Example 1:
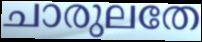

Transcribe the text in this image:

ചാരുലതേ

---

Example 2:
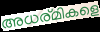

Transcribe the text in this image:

അധര്മികളെ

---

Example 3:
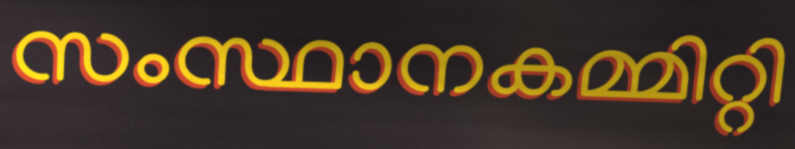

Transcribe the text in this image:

സംസ്ഥാനകമ്മിറ്റി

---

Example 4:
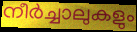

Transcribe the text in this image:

നീർച്ചാലുകളും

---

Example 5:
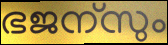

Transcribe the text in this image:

ഭജന്സും